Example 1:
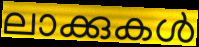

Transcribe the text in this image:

ലാക്കുകൾ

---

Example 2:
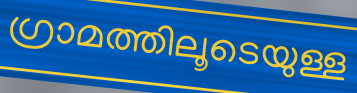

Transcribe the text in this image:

ഗ്രാമത്തിലൂടെയുള്ള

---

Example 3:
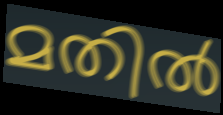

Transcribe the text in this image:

മതിൽ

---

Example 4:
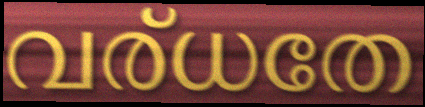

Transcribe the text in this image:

വര്ധതേ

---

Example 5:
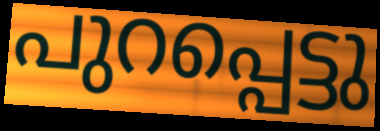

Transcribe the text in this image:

പുറപ്പെട്ടു